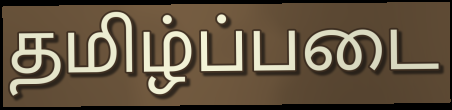
தமிழ்ப்படை